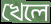
খেলে